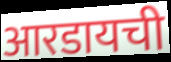
आरडायची